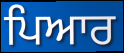
ਪਿਆਰ